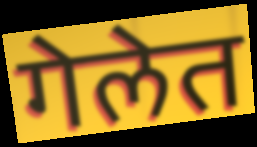
गेलेत